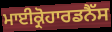
ਮਾਈਕ੍ਰੋਹਾਰਡਨੈੱਸ